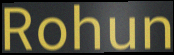
Rohun